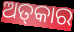
ଅତ୍‌କାର